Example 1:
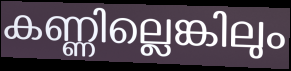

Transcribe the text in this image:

കണ്ണില്ലെങ്കിലും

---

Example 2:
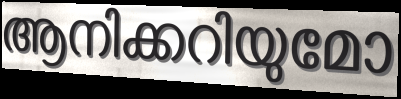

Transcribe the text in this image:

ആനിക്കറിയുമോ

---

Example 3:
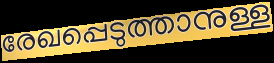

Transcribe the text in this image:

രേഖപ്പെടുത്താനുള്ള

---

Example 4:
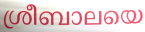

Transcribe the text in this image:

ശ്രീബാലയെ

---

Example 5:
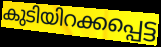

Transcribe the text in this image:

കുടിയിറക്കപ്പെട്ട